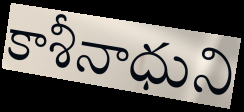
కాశీనాధుని